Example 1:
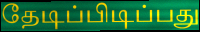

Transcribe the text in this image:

தேடிப்பிடிப்பது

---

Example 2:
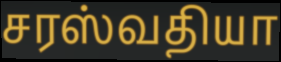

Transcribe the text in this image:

சரஸ்வதியா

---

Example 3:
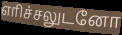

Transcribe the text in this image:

எரிச்சலுடனோ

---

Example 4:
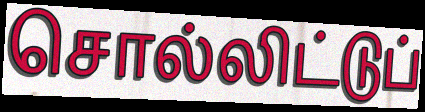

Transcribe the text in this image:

சொல்லிட்டுப்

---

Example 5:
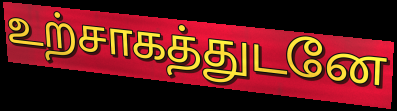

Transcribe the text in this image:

உற்சாகத்துடனே